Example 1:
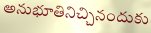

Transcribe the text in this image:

అనుభూతినిచ్చినందుకు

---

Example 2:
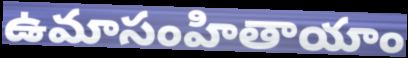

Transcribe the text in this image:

ఉమాసంహితాయాం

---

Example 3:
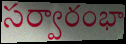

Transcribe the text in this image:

సర్వారంభా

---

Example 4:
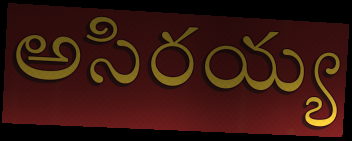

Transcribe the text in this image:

అసిరయ్య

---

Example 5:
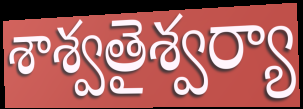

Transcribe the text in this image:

శాశ్వతైశ్వర్యా